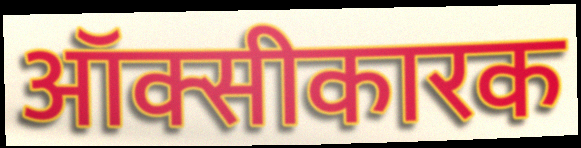
ऑक्सीकारक